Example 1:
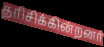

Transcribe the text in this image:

தரிசிக்கின்றனர்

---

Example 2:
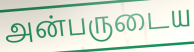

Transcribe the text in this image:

அன்பருடைய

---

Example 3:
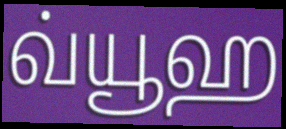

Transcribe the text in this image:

வ்யூஹ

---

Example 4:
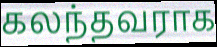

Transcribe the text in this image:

கலந்தவராக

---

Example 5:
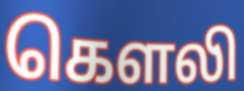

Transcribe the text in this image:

கௌலி